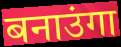
बनाउंगा